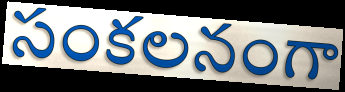
సంకలనంగా